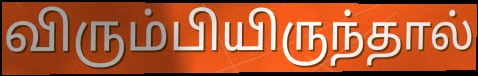
விரும்பியிருந்தால்